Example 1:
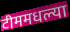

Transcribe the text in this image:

टीममधल्या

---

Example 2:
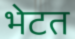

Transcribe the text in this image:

भेटत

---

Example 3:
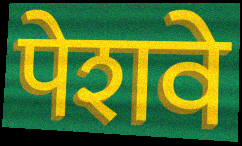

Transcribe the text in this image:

पेशवे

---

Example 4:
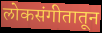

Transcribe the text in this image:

लोकसंगीतातून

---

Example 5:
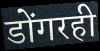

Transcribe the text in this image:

डोंगरही